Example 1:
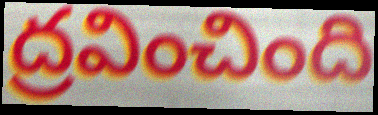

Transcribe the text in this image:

ద్రవించింది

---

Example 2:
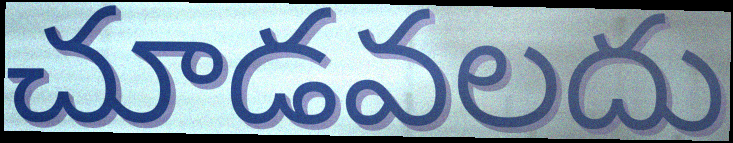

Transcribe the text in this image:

చూడవలదు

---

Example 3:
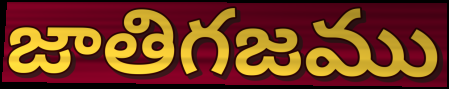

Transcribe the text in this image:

జాతిగజము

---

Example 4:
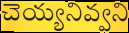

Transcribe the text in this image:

చెయ్యనివ్వని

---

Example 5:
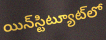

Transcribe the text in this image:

యిన్‌స్టిట్యూట్‌లో